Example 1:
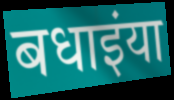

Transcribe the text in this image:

बधाइंया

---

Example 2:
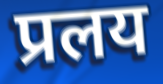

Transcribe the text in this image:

प्रलय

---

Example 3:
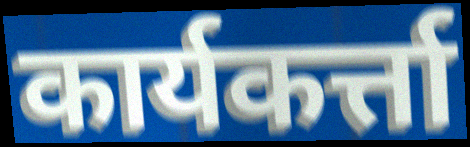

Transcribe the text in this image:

कार्यकर्त्ता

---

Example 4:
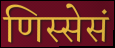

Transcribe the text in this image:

णिस्सेसं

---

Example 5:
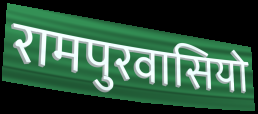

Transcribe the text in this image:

रामपुरवासियो